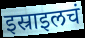
इस्राइलचं